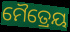
ମୈତ୍ରେୟ